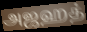
அஜஹத்